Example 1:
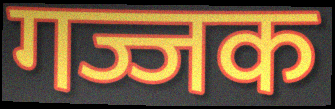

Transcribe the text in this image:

गज्जक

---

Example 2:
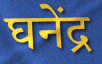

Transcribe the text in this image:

घनेंद्र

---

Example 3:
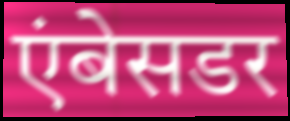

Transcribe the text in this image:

एंबेसडर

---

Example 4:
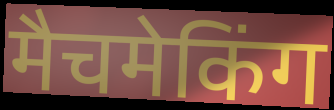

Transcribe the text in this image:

मैचमेकिंग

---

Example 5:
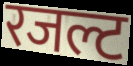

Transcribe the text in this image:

रजल्ट